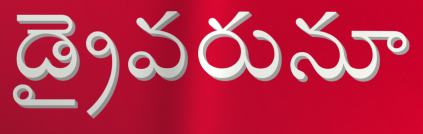
డ్రైవరునూ